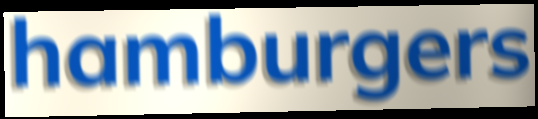
hamburgers